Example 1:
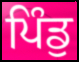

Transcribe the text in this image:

ਪਿੰਡੁ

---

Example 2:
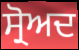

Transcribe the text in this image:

ਸ੍ਰੋਅਦ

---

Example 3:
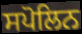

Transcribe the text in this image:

ਸਪੋਲਿਨ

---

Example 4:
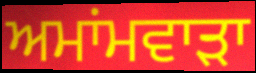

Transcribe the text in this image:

ਅਮਾਂਮਵਾੜਾ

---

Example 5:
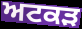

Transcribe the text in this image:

ਅਟਕੜ